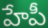
హేపీ